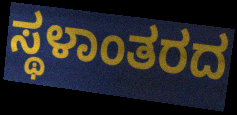
ಸ್ಥಳಾಂತರದ